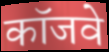
कॉजवे